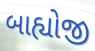
બાહ્યોજી